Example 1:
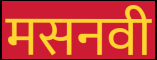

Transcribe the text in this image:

मसनवी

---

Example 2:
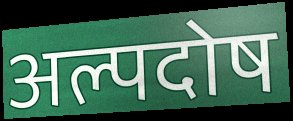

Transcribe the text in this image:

अल्पदोष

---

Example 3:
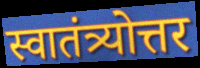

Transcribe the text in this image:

स्वातंत्र्योत्तर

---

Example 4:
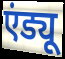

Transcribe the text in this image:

एंड्यू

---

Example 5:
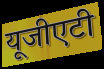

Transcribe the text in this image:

यूजीएटी